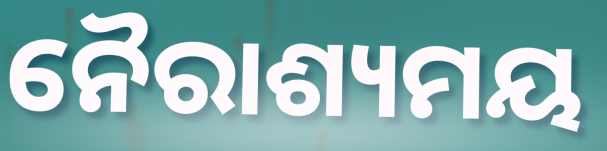
ନୈରାଶ୍ୟମୟ